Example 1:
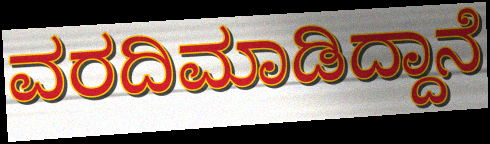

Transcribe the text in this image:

ವರದಿಮಾಡಿದ್ದಾನೆ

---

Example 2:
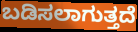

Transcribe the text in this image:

ಬಡಿಸಲಾಗುತ್ತದೆ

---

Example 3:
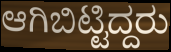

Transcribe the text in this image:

ಆಗಿಬಿಟ್ಟಿದ್ದರು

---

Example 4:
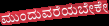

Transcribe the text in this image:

ಮುಂದುವರೆಯಬೇಕೇ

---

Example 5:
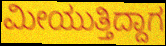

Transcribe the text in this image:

ಮೀಯುತ್ತಿದ್ದಾಗ